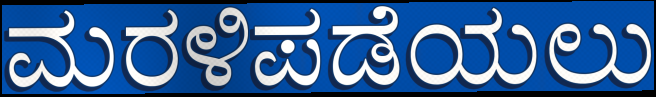
ಮರಳಿಪಡೆಯಲು